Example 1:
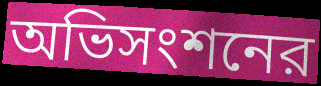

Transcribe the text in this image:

অভিসংশনের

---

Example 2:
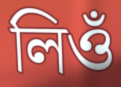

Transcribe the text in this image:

লিওঁ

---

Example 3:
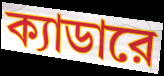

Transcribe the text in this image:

ক্যাডারে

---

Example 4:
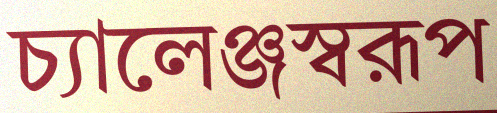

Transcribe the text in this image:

চ্যালেঞ্জস্বরূপ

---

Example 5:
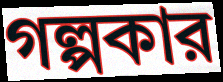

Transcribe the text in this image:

গল্পকার